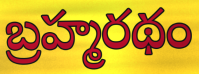
బ్రహ్మరథం